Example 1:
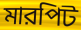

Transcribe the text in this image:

মারপিট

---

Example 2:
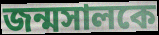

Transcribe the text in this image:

জন্মসালকে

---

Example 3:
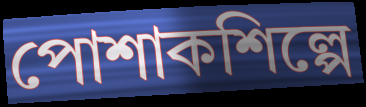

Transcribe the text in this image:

পোশাকশিল্পে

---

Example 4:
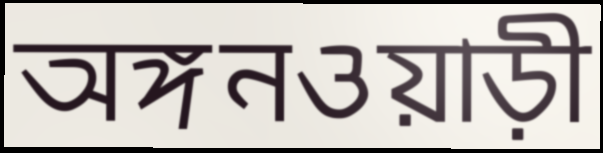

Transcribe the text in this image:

অঙ্গনওয়াড়ী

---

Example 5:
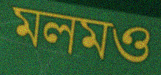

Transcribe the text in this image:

মলমও